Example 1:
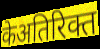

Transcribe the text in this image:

केअतिरिक्त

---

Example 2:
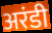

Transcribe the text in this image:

अरंडी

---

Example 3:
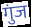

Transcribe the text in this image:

गुंज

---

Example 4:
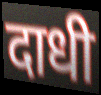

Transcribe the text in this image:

दाधी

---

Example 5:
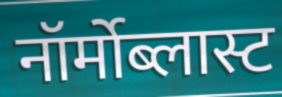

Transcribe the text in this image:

नॉर्मोब्लास्ट